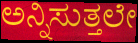
ಅನ್ನಿಸುತ್ತಲೇ